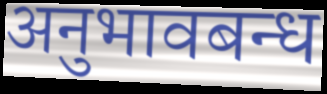
अनुभावबन्ध